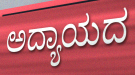
ಅದ್ಯಾಯದ